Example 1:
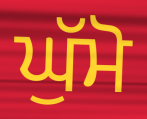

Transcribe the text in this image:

ਘੁੱਮੋ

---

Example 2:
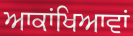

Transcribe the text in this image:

ਆਕਾਂਖਿਆਵਾਂ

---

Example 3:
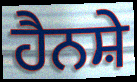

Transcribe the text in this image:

ਹੈਨਸ਼ੇ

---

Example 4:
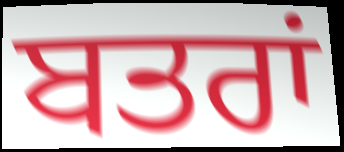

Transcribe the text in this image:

ਬਤਰਾਂ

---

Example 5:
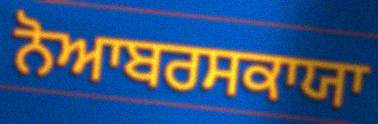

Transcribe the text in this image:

ਨੋਆਬਰਸਕਾਯਾ